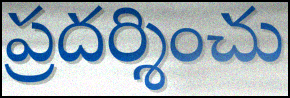
ప్రదర్శించు